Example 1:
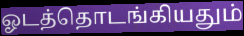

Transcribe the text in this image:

ஓடத்தொடங்கியதும்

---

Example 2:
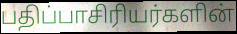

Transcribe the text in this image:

பதிப்பாசிரியர்களின்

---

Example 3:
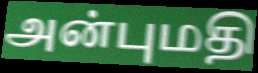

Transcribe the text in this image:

அன்புமதி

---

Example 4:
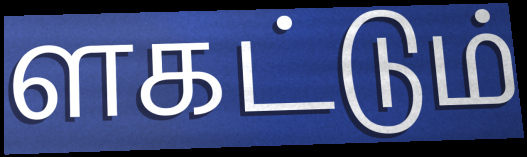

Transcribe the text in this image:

ளகட்டும்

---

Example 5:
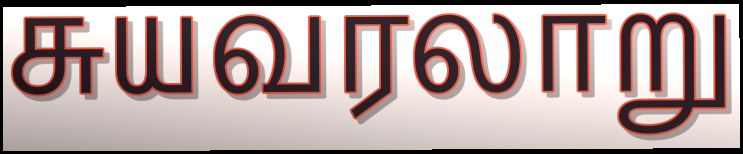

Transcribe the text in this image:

சுயவரலாறு